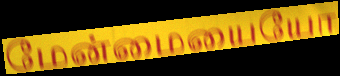
மேன்மையையோ